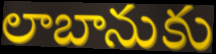
లాబానుకు